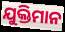
ଯୁକ୍ତିମାନ